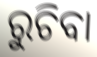
ରୁଚିବା